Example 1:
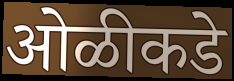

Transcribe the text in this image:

ओळीकडे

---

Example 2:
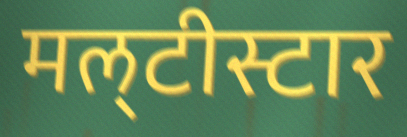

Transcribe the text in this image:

मल्टीस्टार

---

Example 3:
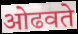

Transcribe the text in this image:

ओढवते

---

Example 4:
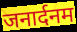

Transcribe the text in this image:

जनार्दनम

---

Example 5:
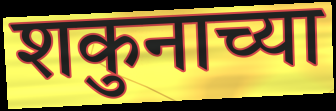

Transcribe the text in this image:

शकुनाच्या